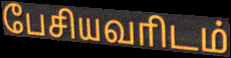
பேசியவரிடம்